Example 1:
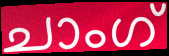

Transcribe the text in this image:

ചാംഗ്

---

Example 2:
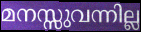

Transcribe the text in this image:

മനസ്സുവന്നില്ല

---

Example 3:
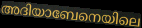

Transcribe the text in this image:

അദിയാബേനെയിലെ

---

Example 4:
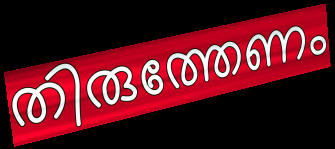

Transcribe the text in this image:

തിരുത്തേണം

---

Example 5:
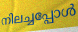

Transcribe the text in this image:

നിലച്ചപ്പോൾ